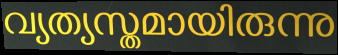
വ്യത്യസ്തമായിരുന്നു